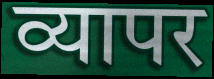
व्यापर